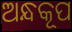
ଅନ୍ଧକୂପ